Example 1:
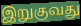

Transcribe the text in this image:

இறுகுவது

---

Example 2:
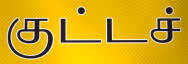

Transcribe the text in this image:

குட்டச்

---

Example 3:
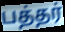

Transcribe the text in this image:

பத்தர்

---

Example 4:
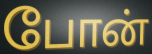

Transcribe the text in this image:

போன்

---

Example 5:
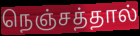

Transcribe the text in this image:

நெஞ்சத்தால்